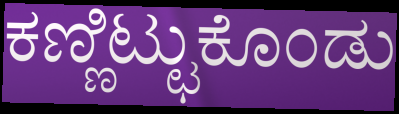
ಕಣ್ಣಿಟ್ಟುಕೊಂಡು